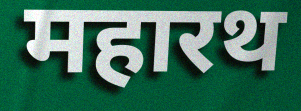
महारथ